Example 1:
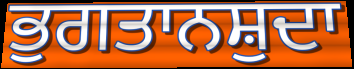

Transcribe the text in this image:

ਭੁਗਤਾਨਸ਼ੁਦਾ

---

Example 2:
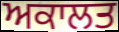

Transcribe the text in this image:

ਅਕਾਲਤ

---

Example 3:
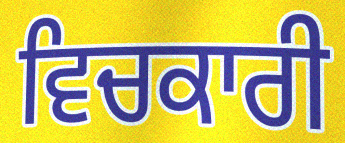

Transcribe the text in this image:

ਵਿਚਕਾਰੀ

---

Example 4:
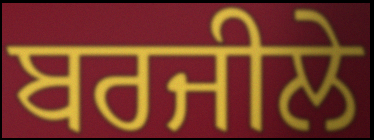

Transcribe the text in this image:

ਬਰਜੀਲੇ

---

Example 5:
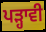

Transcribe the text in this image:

ਪੜ੍ਹਾਵੀ